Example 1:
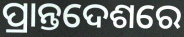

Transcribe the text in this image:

ପ୍ରାନ୍ତଦେଶରେ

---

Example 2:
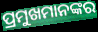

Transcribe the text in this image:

ପ୍ରମୁଖମାନଙ୍କର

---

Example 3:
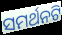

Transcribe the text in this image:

ସମର୍ଥନଟି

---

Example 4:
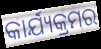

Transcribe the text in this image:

କାର୍ଯ୍ୟକ୍ରମର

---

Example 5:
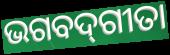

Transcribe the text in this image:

ଭଗବଦ୍‍ଗୀତା